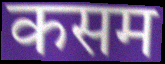
कसम